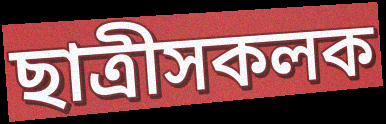
ছাত্ৰীসকলক